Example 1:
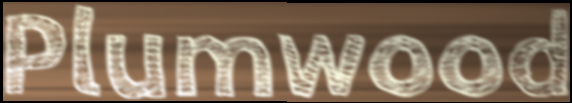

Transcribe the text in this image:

Plumwood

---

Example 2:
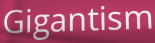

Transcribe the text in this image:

Gigantism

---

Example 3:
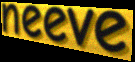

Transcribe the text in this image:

neeve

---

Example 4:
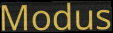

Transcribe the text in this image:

Modus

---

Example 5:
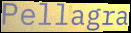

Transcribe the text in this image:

Pellagra